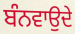
ਬੰਨਵਾਉਦੇ